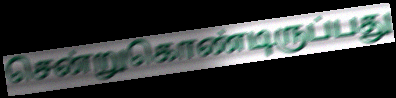
சென்றுகொண்டிருப்பது